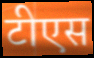
टीएस